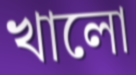
খালো